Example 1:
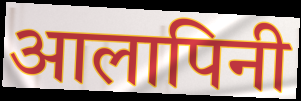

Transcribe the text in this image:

आलापिनी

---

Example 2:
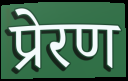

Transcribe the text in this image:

प्रेरण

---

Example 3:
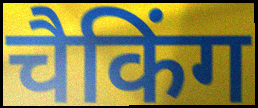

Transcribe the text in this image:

चैकिंग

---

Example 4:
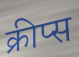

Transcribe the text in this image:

क्रीप्स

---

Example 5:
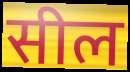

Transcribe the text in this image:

सील